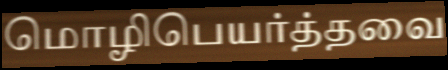
மொழிபெயர்த்தவை